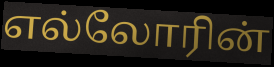
எல்லோரின்